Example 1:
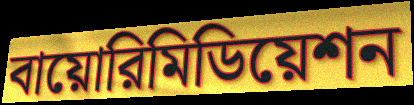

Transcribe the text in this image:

বায়োরিমিডিয়েশন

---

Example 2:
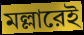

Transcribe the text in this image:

মল্লারেই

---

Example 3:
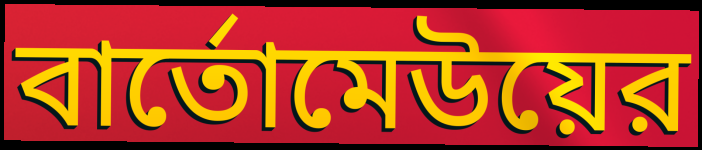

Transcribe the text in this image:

বার্তোমেউয়ের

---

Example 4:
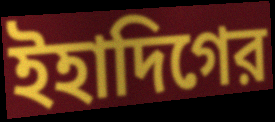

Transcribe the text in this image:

ইহাদিগের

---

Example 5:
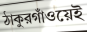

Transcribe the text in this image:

ঠাকুরগাঁওয়েই